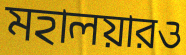
মহালয়ারও